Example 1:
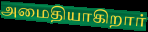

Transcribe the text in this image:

அமைதியாகிறார்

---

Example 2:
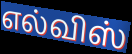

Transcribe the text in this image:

எல்விஸ்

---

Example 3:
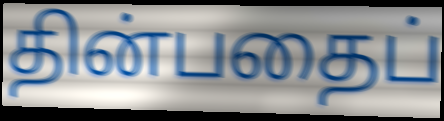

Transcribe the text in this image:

தின்பதைப்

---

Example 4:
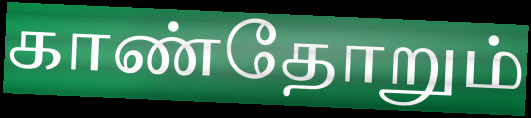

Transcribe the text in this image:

காண்தோறும்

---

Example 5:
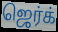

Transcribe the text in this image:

ஜெர்க்